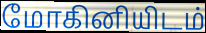
மோகினியிடம்